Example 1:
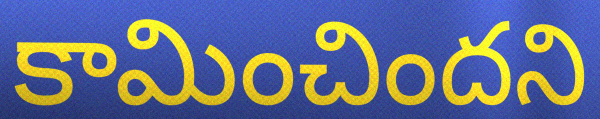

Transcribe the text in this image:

కామించిందని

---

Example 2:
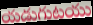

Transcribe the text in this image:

యడుగుటయు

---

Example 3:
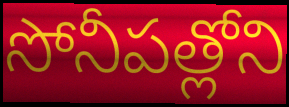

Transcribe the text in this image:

సోనీపత్లోని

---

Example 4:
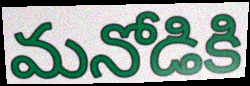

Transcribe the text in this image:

మనోడికి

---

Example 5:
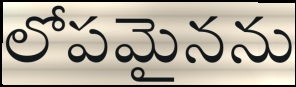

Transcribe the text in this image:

లోపమైనను